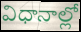
విధానాల్లో